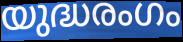
യുദ്ധരംഗം